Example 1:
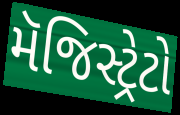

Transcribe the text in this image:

મૅજિસ્ટ્રેટો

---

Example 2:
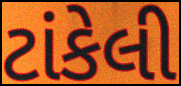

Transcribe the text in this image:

ટાંકેલી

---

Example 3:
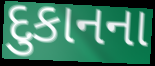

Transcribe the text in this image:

દુકાનના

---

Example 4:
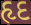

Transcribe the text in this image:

હૃદ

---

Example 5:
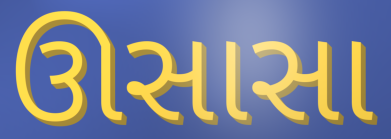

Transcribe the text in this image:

ઊસાસા